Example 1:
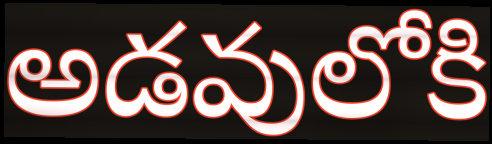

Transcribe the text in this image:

అడవులోకి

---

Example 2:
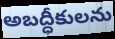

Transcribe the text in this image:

అబద్ధీకులను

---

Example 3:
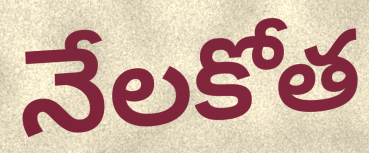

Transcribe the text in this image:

నేలకోత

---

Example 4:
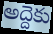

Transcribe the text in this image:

అద్దెకు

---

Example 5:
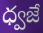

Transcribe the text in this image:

ధ్వజే